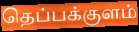
தெப்பக்குளம்